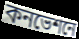
কনভেশনে